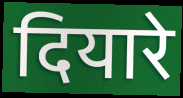
दियारे